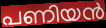
പണിയൻ